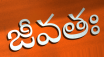
జీవతః